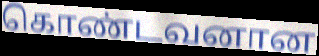
கொண்டவனான